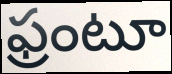
ఫ్రంటూ